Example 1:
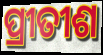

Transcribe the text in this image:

ପ୍ରୀତୀଶ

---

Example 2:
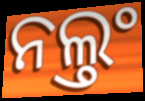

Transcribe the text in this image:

ନଲ୍ତଂ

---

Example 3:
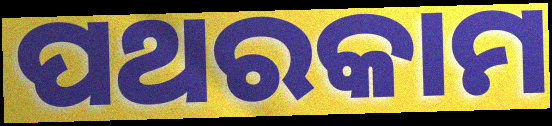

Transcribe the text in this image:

ପଥରକାମ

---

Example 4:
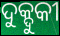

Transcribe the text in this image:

ଦୁକ୍ଦୁକୀ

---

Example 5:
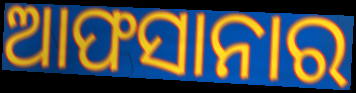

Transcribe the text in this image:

ଆଫସାନାର